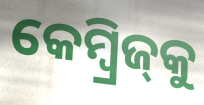
କେମ୍ୱ୍ରିଜ୍‌କୁ